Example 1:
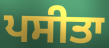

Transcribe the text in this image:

ਪਸੀਤਾ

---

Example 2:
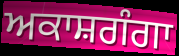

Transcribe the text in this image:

ਅਕਾਸ਼ਗੰਗਾ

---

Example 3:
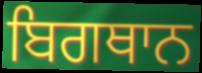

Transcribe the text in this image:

ਬਿਗਥਾਨ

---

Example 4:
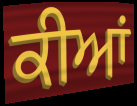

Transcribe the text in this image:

ਕੀਆਂ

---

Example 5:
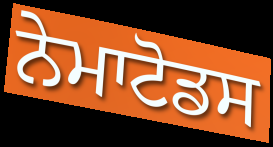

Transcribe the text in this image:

ਨੇਮਾਟੋਡਸ